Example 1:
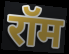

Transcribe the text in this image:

रॉम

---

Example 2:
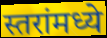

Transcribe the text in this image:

स्तरांमध्ये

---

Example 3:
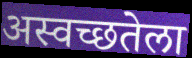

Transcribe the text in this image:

अस्वच्छतेला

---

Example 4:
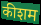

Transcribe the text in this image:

कीशम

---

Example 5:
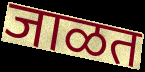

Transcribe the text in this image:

जाळत